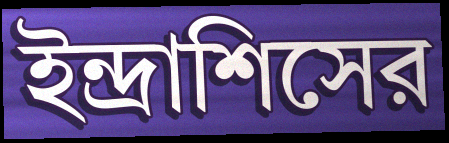
ইন্দ্রাশিসের